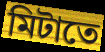
মিটাতে